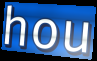
hou